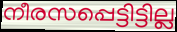
നീരസപ്പെട്ടിട്ടില്ല